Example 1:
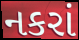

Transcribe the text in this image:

નકરાં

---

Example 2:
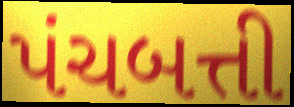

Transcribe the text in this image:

પંચબત્તી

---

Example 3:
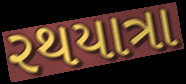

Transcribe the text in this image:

રથયાત્રા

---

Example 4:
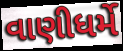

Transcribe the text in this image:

વાણીધર્મે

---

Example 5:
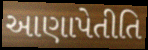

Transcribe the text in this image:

આણાપેતીતિ